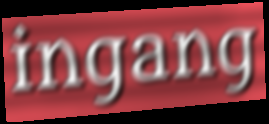
ingang